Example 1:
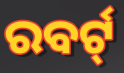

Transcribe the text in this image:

ରବର୍ଟ୍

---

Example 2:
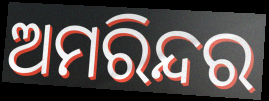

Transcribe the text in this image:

ଅମରିନ୍ଦର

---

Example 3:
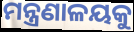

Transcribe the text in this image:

ମନ୍ତ୍ରଣାଳୟକୁ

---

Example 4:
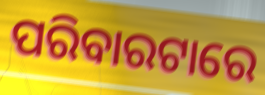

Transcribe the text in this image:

ପରିବାରଟାରେ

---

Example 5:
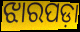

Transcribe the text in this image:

ଝାରପଡ଼ା